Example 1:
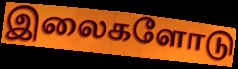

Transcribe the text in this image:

இலைகளோடு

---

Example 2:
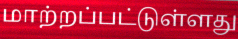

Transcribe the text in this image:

மாற்றப்பட்டுள்ளது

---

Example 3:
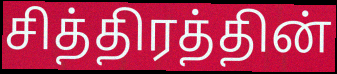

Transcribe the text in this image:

சித்திரத்தின்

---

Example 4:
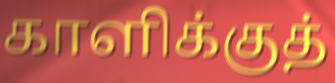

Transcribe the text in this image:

காளிக்குத்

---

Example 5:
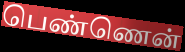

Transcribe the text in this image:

பெண்ணென்